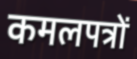
कमलपत्रों